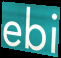
ebi